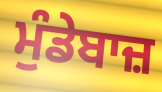
ਮੁੰਡੇਬਾਜ਼